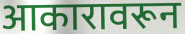
आकारावरून